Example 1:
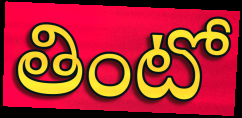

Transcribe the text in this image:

తింటో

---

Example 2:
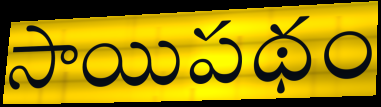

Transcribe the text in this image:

సాయిపథం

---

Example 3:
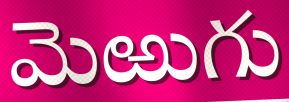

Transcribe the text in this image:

మెఱుగు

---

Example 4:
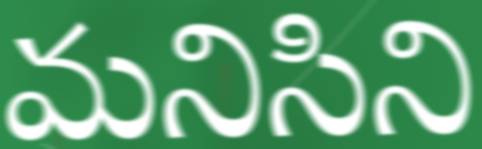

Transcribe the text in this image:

మనిసిని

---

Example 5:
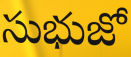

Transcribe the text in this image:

సుభుజో